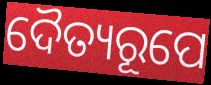
ଦୈତ୍ୟରୂପେ